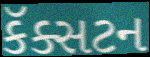
કૅક્સટન